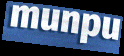
munpu